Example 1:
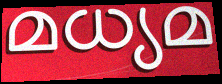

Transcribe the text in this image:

മധ്യമ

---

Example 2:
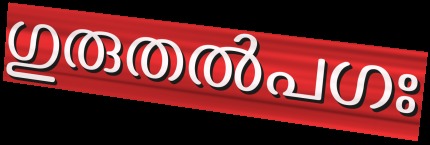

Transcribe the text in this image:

ഗുരുതൽപഗഃ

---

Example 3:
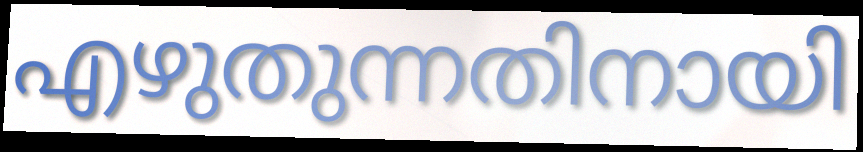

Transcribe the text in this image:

എഴുതുന്നതിനായി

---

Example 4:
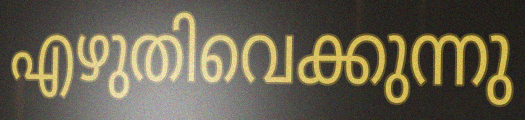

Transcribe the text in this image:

എഴുതിവെക്കുന്നു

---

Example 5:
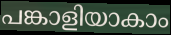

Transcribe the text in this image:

പങ്കാളിയാകാം